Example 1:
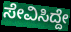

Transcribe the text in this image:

ಸೇವಿಸಿದ್ದೇ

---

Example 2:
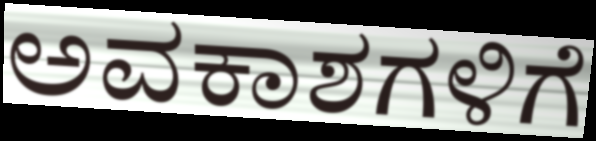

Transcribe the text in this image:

ಅವಕಾಶಗಳಿಗೆ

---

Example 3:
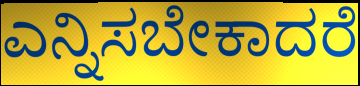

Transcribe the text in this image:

ಎನ್ನಿಸಬೇಕಾದರೆ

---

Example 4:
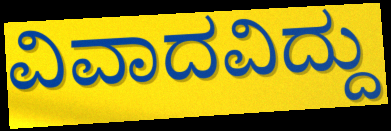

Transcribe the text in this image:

ವಿವಾದವಿದ್ದು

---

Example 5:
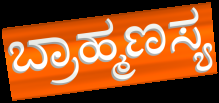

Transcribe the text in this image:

ಬ್ರಾಹ್ಮಣಸ್ಯ